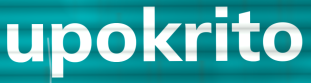
upokrito